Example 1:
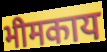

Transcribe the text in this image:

भीमकाय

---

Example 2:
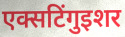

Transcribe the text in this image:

एक्सटिंगुइशर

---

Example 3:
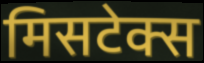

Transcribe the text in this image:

मिसटेक्स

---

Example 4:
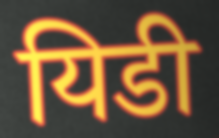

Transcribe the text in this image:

यिडी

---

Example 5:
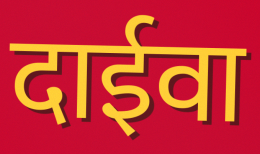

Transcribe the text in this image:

दाईवा